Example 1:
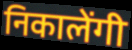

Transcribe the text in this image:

निकालेंगी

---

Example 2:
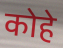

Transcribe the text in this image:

कोहे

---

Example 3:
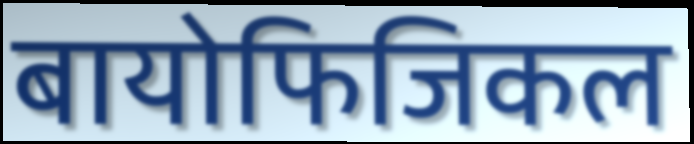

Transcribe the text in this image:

बायोफिजिकल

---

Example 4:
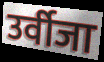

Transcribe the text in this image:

उर्वीजा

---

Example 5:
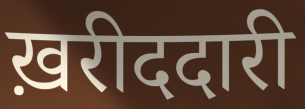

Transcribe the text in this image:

ख़रीददारी